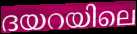
ദയറയിലെ